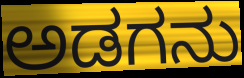
ಅಡಗನು